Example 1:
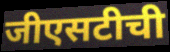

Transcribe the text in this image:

जीएसटीची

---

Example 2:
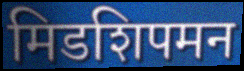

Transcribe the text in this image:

मिडशिपमन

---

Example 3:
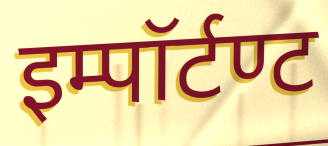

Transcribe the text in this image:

इम्पॉर्टण्ट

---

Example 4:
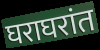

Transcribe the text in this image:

घराघरांत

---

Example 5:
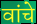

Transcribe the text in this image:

वांचे